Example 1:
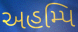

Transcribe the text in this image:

અહમ્પિ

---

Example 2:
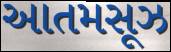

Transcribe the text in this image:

આતમસૂઝ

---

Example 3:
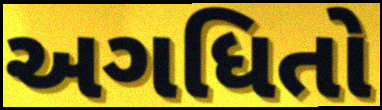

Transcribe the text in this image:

અગધિતો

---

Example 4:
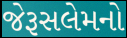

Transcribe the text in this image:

જેરૂસલેમનો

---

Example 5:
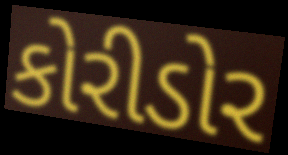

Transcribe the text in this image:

કોરીડોર